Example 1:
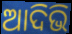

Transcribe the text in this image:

ଆଦିଭି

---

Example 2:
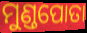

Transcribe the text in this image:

ମୁଣ୍ଡପୋତା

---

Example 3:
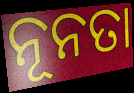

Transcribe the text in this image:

ନୂନତା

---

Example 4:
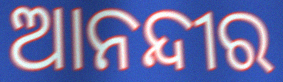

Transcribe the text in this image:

ଆନନ୍ଦୀର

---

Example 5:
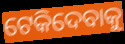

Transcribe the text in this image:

ଟେକିଦେବାକୁ